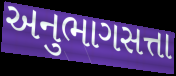
અનુભાગસત્તા